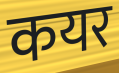
कयर